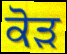
ਕੋੜ